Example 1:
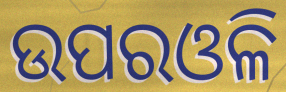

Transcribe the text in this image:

ଉପରଓଳି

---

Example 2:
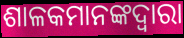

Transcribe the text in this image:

ଶାଳକମାନଙ୍କଦ୍ୱାରା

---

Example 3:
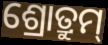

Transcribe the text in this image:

ଶ୍ରୋତ୍ରୁମ୍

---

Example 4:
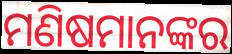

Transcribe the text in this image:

ମଣିଷମାନଙ୍କର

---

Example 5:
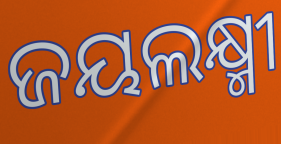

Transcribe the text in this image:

ଜୟଲକ୍ଷ୍ମୀ